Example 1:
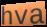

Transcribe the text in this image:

hva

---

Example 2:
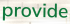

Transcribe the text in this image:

provide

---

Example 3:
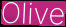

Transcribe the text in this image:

Olive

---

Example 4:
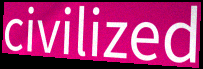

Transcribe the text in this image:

civilized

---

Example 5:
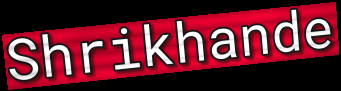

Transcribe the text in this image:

Shrikhande